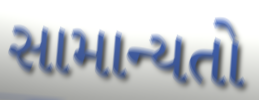
સામાન્યતો